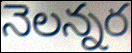
నెలన్నర